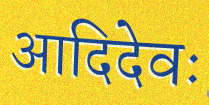
आदिदेवः